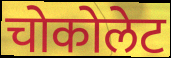
चोकोलेट